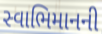
સ્વાભિમાનની